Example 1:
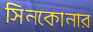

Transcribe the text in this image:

সিনকোনার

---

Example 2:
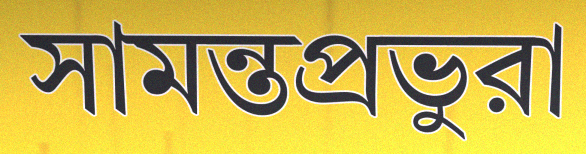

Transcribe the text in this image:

সামন্তপ্রভুরা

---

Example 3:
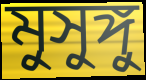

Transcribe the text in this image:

মুসুঙ্গু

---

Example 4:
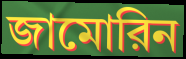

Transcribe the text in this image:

জামোরিন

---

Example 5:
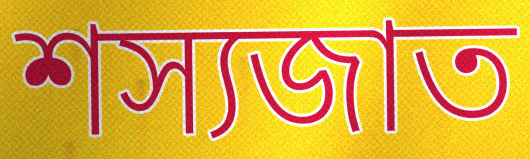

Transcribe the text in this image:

শস্যজাত